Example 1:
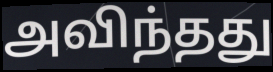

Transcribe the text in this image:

அவிந்தது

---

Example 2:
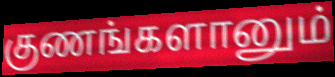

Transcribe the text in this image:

குணங்களானும்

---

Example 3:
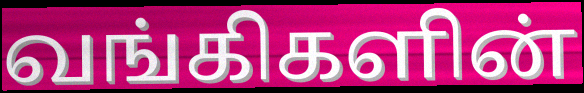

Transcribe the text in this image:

வங்கிகளின்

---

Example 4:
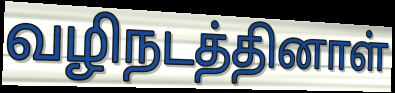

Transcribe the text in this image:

வழிநடத்தினாள்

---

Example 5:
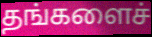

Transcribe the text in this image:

தங்களைச்